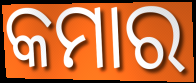
କମାର